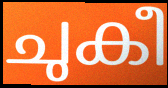
ചുകീ